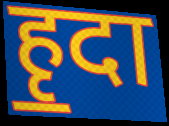
हृ॒दा